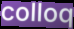
colloq